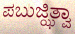
ಪಬುಜ್ಝಿತ್ವಾ